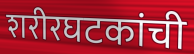
शरीरघटकांची